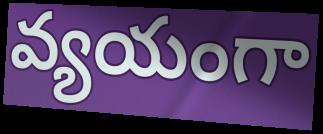
వ్యయంగా